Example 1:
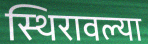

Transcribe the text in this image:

स्थिरावल्या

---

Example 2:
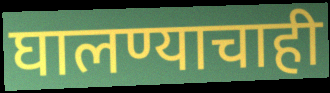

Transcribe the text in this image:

घालण्याचाही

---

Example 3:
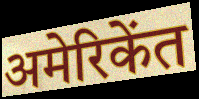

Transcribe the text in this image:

अमेरिकेंत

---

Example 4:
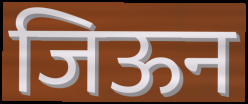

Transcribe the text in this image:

जिऊन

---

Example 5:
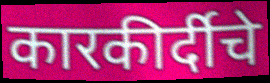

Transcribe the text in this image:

कारकीर्दीचे